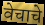
वेचाचे